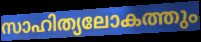
സാഹിത്യലോകത്തും